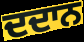
ਦਦਾਨ